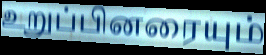
உறுப்பினரையும்